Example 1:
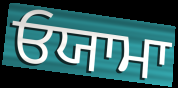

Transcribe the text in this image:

ਓਯਾਮਾ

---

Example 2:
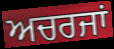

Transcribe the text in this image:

ਅਚਰਜਾਂ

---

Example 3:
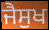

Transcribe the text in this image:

ਜੈਸੁਖ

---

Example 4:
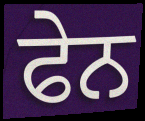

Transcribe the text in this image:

ਫੇਨ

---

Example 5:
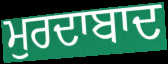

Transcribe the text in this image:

ਮੁਰਦਾਬਾਦ